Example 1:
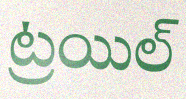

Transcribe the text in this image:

ట్రయిల్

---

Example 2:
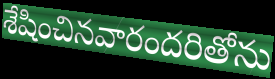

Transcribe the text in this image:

శేషించినవారందరితోను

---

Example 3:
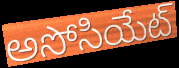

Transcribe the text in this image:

అసోసియేట్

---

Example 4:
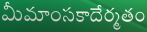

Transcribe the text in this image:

మీమాంసకాదేర్మతం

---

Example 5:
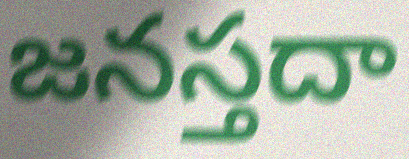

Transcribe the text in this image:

జనస్తదా